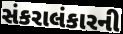
સંકરાલંકારની